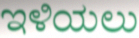
ಇಳಿಯಲು